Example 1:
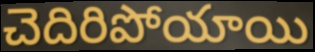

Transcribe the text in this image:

చెదిరిపోయాయి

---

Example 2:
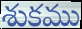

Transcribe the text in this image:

శుకము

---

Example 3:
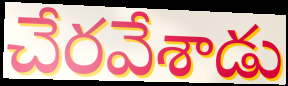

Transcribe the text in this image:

చేరవేశాడు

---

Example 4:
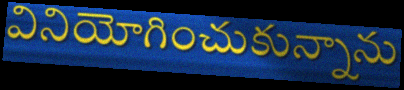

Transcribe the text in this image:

వినియోగించుకున్నాను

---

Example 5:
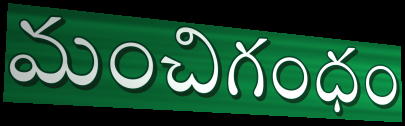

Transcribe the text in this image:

మంచిగంధం